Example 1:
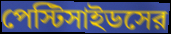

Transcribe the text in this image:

পেস্টিসাইডসের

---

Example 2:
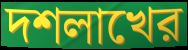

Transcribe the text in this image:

দশলাখের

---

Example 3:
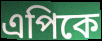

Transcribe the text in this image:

এপিকে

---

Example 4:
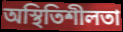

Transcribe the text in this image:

অস্থিতিশীলতা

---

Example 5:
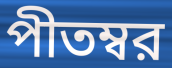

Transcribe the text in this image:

পীতম্বর